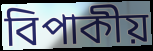
বিপাকীয়